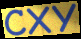
CXY